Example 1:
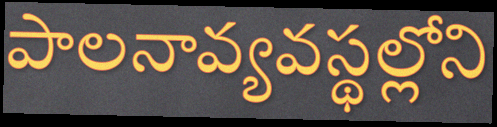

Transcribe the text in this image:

పాలనావ్యవస్థల్లోని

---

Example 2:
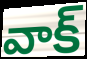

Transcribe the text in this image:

వాక్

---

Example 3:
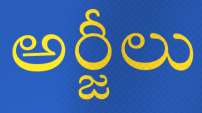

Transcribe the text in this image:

అర్జీలు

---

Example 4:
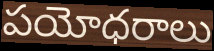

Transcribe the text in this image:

పయోధరాలు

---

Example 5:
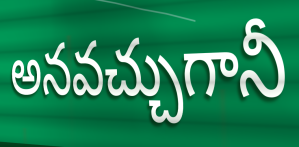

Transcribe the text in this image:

అనవచ్చుగానీ